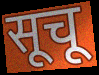
सूचू